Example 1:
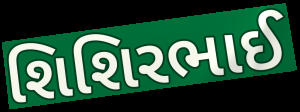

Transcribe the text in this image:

શિશિરભાઈ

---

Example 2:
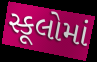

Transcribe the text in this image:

સ્કૂલોમાં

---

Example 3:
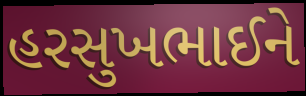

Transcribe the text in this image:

હરસુખભાઈને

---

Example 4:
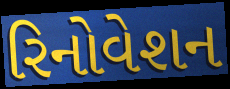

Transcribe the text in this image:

રિનોવેશન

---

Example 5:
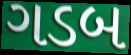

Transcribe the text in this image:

ગડબ